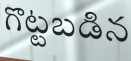
గొట్టబడిన